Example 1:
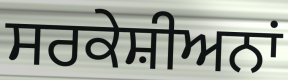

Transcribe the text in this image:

ਸਰਕੇਸ਼ੀਅਨਾਂ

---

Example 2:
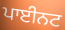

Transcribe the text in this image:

ਪਾਈਨਟ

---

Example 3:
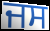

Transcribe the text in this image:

ਜਸ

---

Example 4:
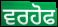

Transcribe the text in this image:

ਵਰਹੋਫ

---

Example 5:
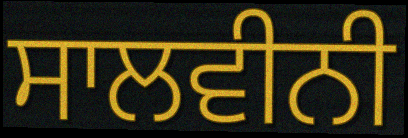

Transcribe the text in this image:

ਸਾਲਵੀਨੀ